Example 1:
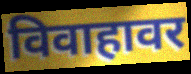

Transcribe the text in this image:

विवाहावर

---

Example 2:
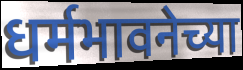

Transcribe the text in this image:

धर्मभावनेच्या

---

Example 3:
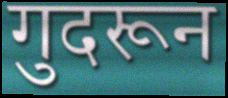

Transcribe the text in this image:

गुदरून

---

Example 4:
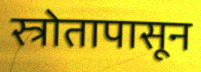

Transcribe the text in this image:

स्त्रोतापासून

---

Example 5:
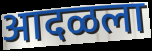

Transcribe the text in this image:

आदळला